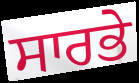
ਸਾਰਭੇ